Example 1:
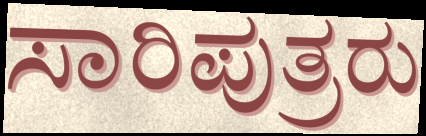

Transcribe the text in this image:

ಸಾರಿಪುತ್ರರು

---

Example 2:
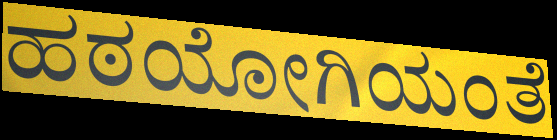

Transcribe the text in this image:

ಹಠಯೋಗಿಯಂತೆ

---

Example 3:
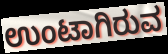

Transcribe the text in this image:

ಉಂಟಾಗಿರುವ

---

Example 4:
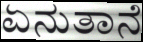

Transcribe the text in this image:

ಏನುತಾನೆ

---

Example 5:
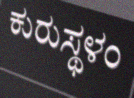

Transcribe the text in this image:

ಕುರುಸ್ಥಳಂ